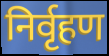
निर्वृहण